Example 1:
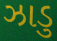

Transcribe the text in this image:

ઝાડુ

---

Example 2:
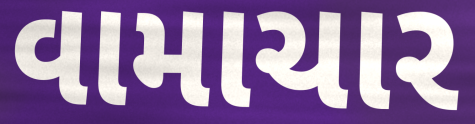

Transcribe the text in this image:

વામાચાર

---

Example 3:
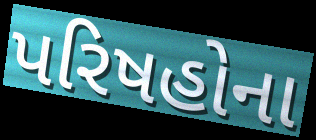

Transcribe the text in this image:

પરિષહોના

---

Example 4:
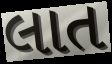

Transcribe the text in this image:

લાત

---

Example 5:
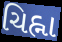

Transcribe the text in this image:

ચિહ્ના